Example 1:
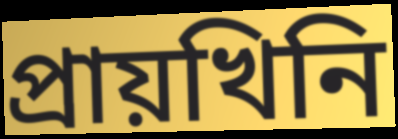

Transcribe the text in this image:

প্ৰায়খিনি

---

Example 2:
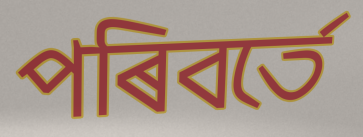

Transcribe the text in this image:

পৰিবৰ্তে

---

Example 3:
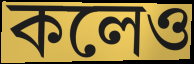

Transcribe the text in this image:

কলেও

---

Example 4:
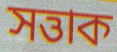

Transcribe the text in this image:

সত্তাক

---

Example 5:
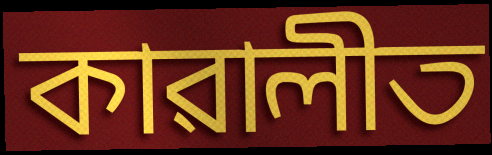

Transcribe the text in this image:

কাৱালীত